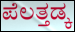
ಪೆಲತ್ತಡ್ಕ